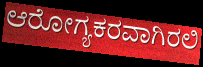
ಆರೋಗ್ಯಕರವಾಗಿರಲಿ